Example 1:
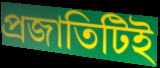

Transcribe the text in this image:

প্রজাতিটিই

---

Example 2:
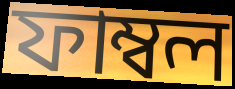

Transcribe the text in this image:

ফাম্বল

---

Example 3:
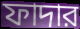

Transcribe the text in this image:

ফাদার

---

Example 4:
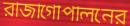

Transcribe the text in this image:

রাজাগোপালনের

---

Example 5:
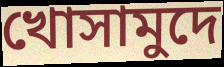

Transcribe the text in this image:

খোসামুদে